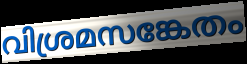
വിശ്രമസങ്കേതം